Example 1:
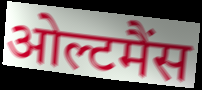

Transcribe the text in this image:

ओल्टमैंस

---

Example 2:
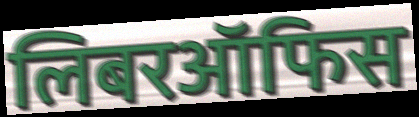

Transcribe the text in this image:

लिबरऑफिस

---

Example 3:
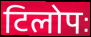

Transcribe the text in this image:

टिलोपः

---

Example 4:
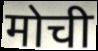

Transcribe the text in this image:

मोची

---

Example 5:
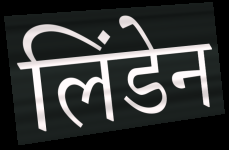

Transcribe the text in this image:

लिंडेन